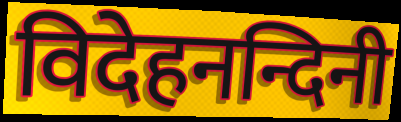
विदेहनन्दिनी